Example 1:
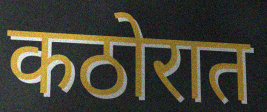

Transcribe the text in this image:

कठोरात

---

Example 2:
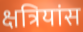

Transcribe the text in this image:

क्षत्रियांस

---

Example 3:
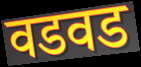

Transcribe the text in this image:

वडवड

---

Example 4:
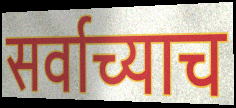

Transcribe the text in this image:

सर्वाच्याच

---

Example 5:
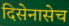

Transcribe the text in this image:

दिसेनासेच